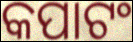
କପାଟଂ